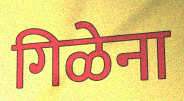
गिळेना